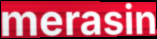
merasin